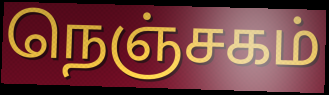
நெஞ்சகம்